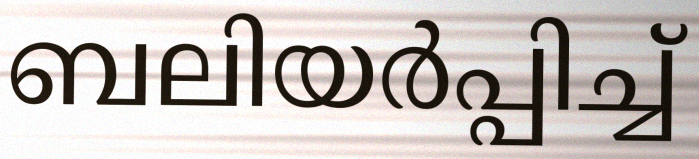
ബലിയർപ്പിച്ച്